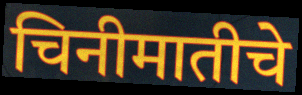
चिनीमातीचे